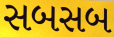
સબસબ